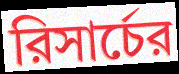
রিসার্চের